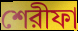
শেরীফা